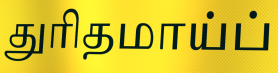
துரிதமாய்ப்